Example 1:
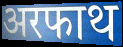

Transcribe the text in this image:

अरफाथ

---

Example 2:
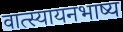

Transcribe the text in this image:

वात्स्यायनभाष्य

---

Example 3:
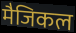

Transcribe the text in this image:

मैजिकल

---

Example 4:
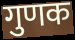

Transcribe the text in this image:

गुणक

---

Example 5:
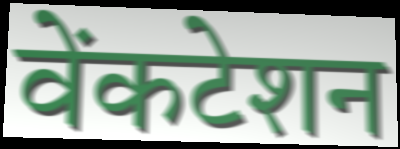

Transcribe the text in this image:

वेंकटेशन